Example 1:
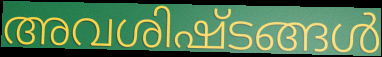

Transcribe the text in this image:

അവശിഷ്ടങ്ങൾ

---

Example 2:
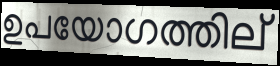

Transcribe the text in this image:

ഉപയോഗത്തില്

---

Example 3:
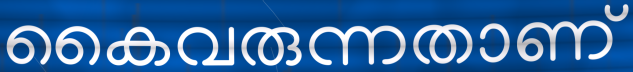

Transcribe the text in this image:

കൈവരുന്നതാണ്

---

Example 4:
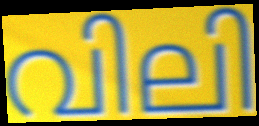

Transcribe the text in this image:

വിലി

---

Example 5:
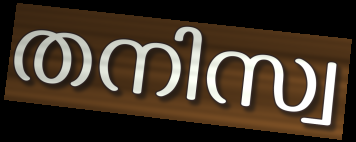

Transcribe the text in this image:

തനിസ്വ